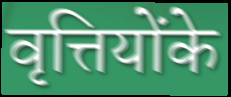
वृत्तियोंके